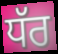
ਧੱਰ